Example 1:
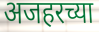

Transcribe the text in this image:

अजहरच्या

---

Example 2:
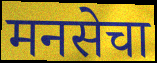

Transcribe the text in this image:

मनसेचा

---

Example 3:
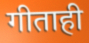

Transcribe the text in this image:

गीताही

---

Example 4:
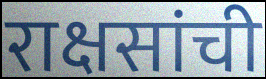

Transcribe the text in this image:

राक्षसांची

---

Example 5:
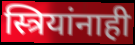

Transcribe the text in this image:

स्त्रियांनाही